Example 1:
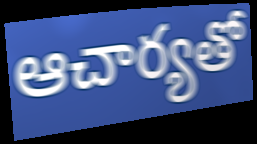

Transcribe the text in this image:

ఆచార్యతో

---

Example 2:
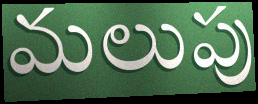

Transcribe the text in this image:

మలుపు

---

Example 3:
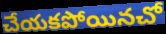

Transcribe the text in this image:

చేయకపోయినచో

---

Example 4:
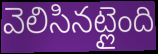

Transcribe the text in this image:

వెలిసినట్లైంది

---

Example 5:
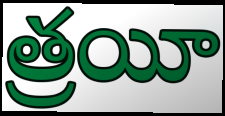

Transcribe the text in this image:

త్రయీ